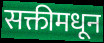
सक्तीमधून